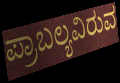
ಪ್ರಾಬಲ್ಯವಿರುವ